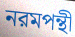
নরমপন্থী